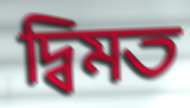
দ্বিমত